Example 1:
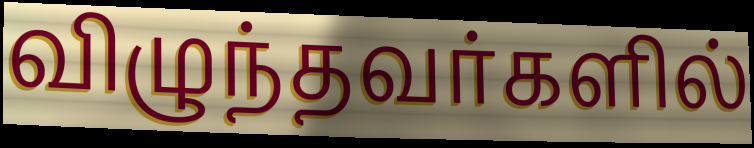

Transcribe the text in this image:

விழுந்தவர்களில்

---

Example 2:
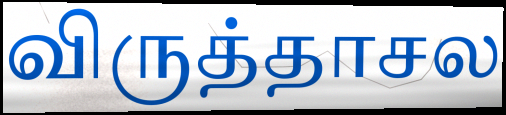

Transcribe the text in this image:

விருத்தாசல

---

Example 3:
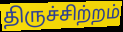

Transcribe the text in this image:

திருச்சிற்றம்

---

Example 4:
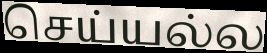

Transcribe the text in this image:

செய்யல்ல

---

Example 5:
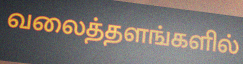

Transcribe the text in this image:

வலைத்தளங்களில்